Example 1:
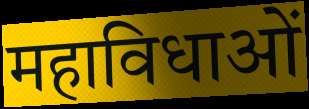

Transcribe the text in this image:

महाविधाओं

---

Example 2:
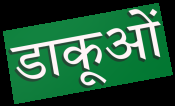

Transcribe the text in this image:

डाकूओं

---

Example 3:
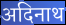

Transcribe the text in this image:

अदिनाथ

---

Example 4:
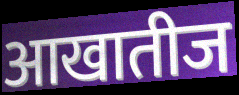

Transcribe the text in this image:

आखातीज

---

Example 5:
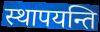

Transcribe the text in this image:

स्थापयन्ति